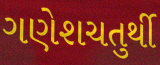
ગણેશચતુર્થી